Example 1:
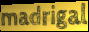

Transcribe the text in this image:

madrigal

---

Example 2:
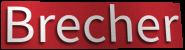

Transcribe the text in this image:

Brecher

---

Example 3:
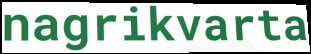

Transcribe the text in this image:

nagrikvarta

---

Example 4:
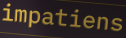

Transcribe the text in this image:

impatiens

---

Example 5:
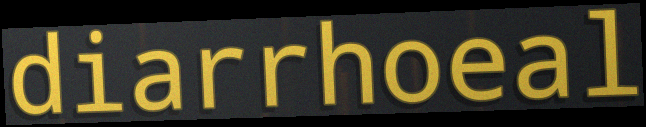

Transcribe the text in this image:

diarrhoeal